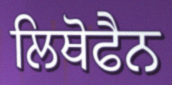
ਲਿਥੋਫੈਨ